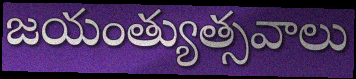
జయంత్యుత్సవాలు